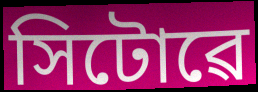
সিটোৱে